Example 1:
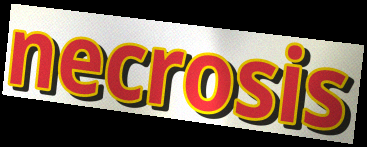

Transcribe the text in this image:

necrosis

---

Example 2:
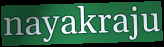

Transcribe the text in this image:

nayakraju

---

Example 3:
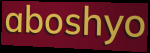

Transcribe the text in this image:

aboshyo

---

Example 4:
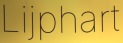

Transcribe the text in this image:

Lijphart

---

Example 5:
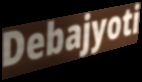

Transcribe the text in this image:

Debajyoti